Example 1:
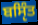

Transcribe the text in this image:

ਬਸੵਿੰਤ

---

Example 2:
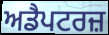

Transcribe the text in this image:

ਅਡੈਪਟਰਜ਼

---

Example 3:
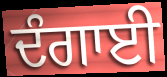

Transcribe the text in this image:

ਦੰਗਾਈ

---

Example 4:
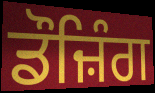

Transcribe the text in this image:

ਡੌਜ਼ਿੰਗ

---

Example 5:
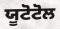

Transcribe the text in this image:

ਯੂਟੋਟੋਲ